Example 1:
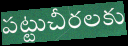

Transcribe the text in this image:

పట్టుచీరలకు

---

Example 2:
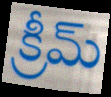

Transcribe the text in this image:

క్రీమ్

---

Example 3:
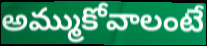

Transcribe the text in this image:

అమ్ముకోవాలంటే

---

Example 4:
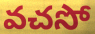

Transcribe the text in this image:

వచసో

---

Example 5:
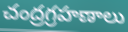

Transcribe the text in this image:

చంద్రగ్రహణాలు